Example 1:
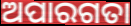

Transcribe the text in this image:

ଅପାରଗତା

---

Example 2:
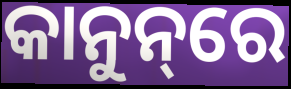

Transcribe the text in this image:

କାନୁନ୍‌ରେ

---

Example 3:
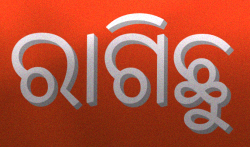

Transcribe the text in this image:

ରାଗିଛୁ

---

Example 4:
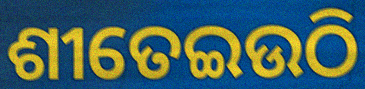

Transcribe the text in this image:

ଶୀତେଇଉଠି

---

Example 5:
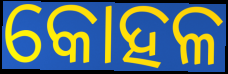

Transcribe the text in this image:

କୋହଳ